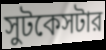
সুটকেসটার